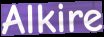
Alkire